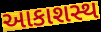
આકાશસ્થ